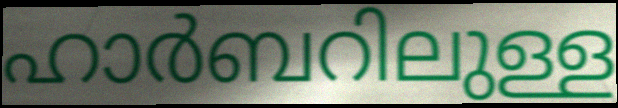
ഹാർബറിലുള്ള